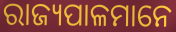
ରାଜ୍ୟପାଳମାନେ